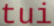
tui